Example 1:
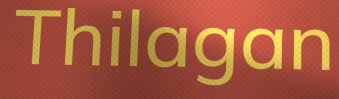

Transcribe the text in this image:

Thilagan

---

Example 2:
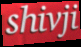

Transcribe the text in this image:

shivji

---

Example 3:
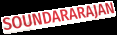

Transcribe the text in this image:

SOUNDARARAJAN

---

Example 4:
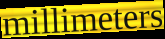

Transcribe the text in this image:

millimeters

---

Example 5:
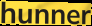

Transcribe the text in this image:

hunner